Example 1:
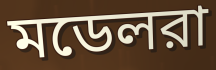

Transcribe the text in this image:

মডেলরা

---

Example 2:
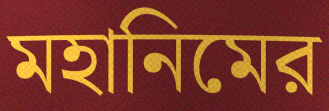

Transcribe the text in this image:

মহানিমের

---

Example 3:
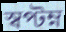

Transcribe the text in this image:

স্বপ্টম্ন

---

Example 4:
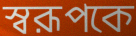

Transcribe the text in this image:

স্বরূপকে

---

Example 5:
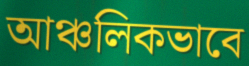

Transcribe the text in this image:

আঞ্চলিকভাবে